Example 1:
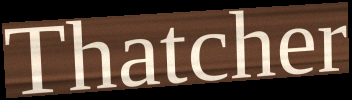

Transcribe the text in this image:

Thatcher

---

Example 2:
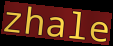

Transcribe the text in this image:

zhale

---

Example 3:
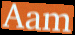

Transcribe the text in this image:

Aam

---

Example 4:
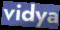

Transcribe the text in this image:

vidya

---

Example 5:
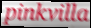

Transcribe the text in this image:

pinkvilla